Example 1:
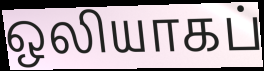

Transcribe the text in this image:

ஒலியாகப்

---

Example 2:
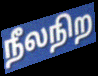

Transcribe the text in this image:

நீலநிற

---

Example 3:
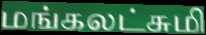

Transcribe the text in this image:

மங்கலட்சுமி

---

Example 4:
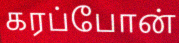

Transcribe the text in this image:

கரப்போன்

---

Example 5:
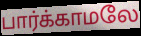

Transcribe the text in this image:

பார்க்காமலே